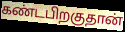
கண்டபிறகுதான்